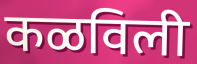
कळविली